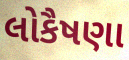
લોકૈષણા